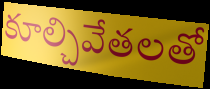
కూల్చివేతలతో